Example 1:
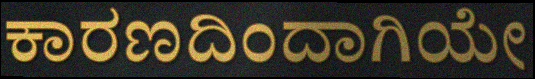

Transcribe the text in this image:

ಕಾರಣದಿಂದಾಗಿಯೇ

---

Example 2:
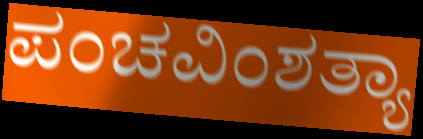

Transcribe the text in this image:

ಪಂಚವಿಂಶತ್ಯಾ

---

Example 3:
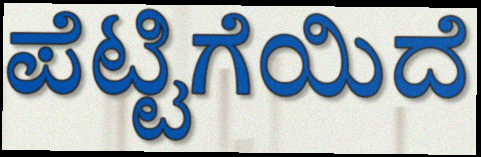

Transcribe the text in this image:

ಪೆಟ್ಟಿಗೆಯಿದೆ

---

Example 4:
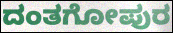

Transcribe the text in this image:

ದಂತಗೋಪುರ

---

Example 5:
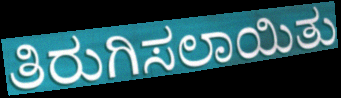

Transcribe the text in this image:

ತಿರುಗಿಸಲಾಯಿತು